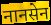
नानसेन